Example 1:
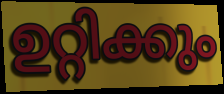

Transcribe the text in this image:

ഉറ്റിക്കും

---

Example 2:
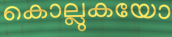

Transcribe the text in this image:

കൊല്ലുകയോ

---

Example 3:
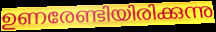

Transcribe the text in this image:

ഉണരേണ്ടിയിരിക്കുന്നു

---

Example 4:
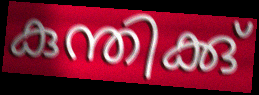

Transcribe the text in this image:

കുന്തിക്കു്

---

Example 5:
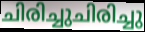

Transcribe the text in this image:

ചിരിച്ചുചിരിച്ചു